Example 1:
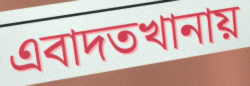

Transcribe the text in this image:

এবাদতখানায়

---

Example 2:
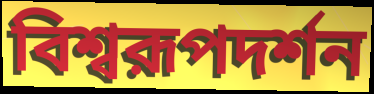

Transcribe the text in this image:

বিশ্বরূপদর্শন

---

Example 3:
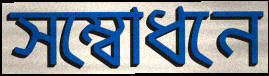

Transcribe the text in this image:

সম্বোধনে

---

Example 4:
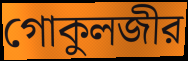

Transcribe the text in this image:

গোকুলজীর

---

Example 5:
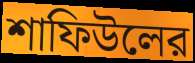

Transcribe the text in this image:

শাফিউলের